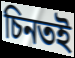
চিনতই